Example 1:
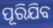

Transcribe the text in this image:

ପୂରିଯିବ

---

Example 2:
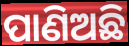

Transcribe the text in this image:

ପାଣିଅଛି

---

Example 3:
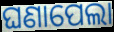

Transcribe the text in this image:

ଘଣାପେଲା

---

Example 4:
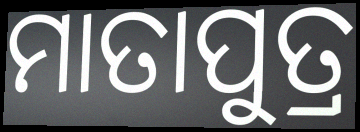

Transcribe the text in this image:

ମାତାପୁତ୍ର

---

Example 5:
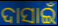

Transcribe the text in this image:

ଦାସାଇଁ